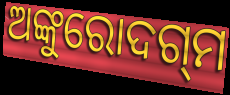
ଅଙ୍କୁରୋଦଗ୍‌ମ